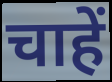
चाहें